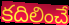
కదిలించే